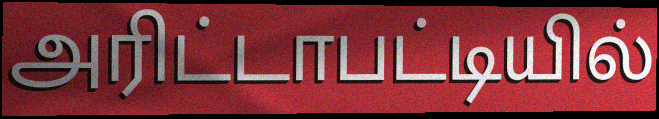
அரிட்டாபட்டியில்